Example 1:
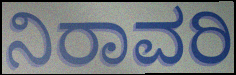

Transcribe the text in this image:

ನಿರಾವರಿ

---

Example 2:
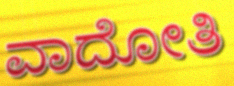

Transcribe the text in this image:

ವಾದೋತಿ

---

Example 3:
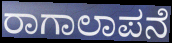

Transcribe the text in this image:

ರಾಗಾಲಾಪನೆ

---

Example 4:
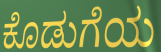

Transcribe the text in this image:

ಕೊಡುಗೆಯ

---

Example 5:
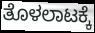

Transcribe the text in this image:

ತೊಳಲಾಟಕ್ಕೆ